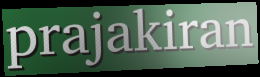
prajakiran